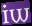
iw